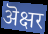
ऄक्षर